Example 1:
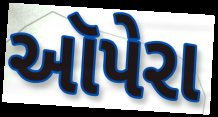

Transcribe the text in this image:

ઑપેરા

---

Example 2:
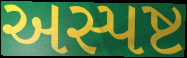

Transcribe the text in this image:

અસ્પષ્ટ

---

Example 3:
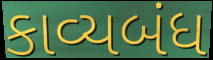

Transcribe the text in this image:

કાવ્યબંધ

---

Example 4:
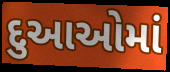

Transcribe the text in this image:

દુઆઓમાં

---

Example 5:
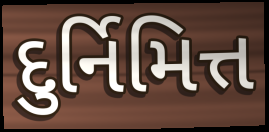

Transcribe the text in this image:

દુર્નિમિત્ત